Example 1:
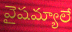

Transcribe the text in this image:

వైషమ్యాలే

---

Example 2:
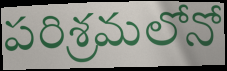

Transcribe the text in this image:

పరిశ్రమలోనో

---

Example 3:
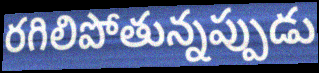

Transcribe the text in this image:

రగిలిపోతున్నప్పుడు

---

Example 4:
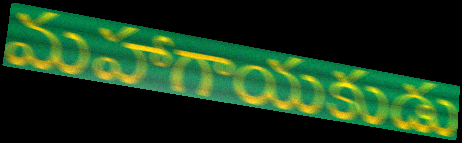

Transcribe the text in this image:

మహాగాయకుడు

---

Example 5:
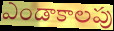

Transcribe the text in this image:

ఎండాకాలపు